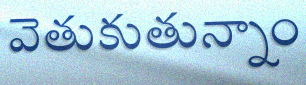
వెతుకుతున్నాం